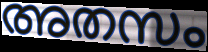
അതസം